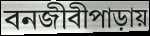
বনজীবীপাড়ায়